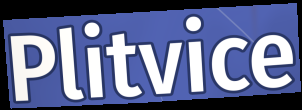
Plitvice